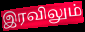
இரவிலும்